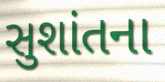
સુશાંતના